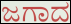
ಜಗಾದ